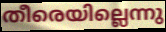
തീരെയില്ലെന്നു